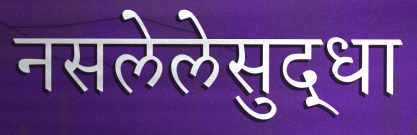
नसलेलेसुद्धा